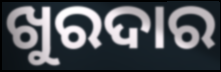
ଖୁରଦାର